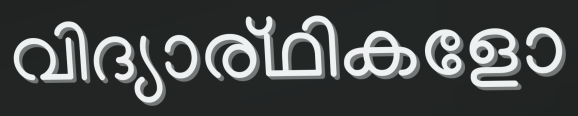
വിദ്യാര്ഥികളോ